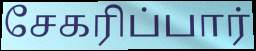
சேகரிப்பார்